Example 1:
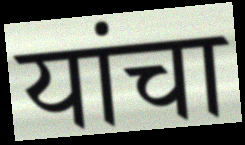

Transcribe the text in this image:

यांचा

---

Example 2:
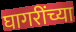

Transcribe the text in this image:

घागरींच्या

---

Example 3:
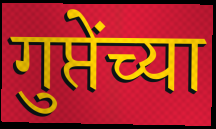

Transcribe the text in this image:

गुप्तेंच्या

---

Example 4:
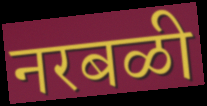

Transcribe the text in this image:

नरबळी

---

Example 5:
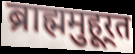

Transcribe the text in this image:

ब्राह्ममुहूर्त